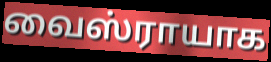
வைஸ்ராயாக